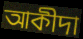
আকীদা